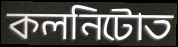
কলনিটোত